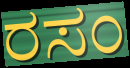
ರಸಂ